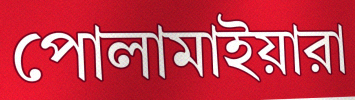
পোলামাইয়ারা